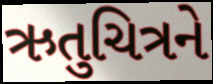
ઋતુચિત્રને